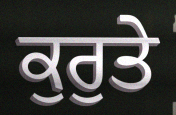
ਕੁਰੁਤੇ